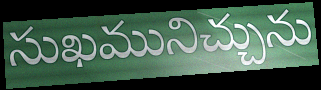
సుఖమునిచ్చును